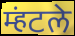
म्हंटले